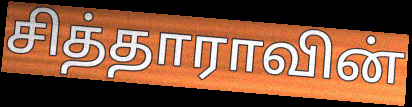
சித்தாராவின்